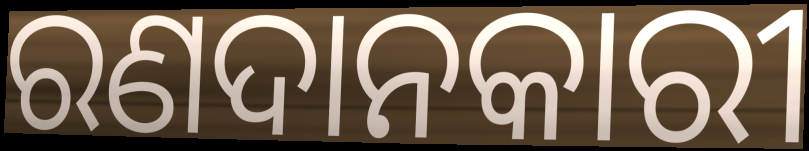
ରଣଦାନକାରୀ